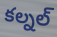
కల్నల్